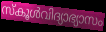
സ്കൂൾവിദ്യാഭ്യാസം